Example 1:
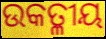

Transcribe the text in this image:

ଉକତ୍ଳୀୟ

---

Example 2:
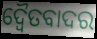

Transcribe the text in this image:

ଦ୍ୱୈତବାଦର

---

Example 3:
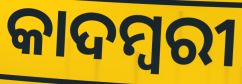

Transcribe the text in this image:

କାଦମ୍ବରୀ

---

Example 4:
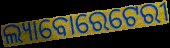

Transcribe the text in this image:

ଲ୍ୟାବୋରେଟେରୀ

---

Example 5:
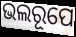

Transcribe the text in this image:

ଭଲରୂପେ